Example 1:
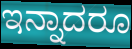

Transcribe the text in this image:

ಇನ್ನಾದರೂ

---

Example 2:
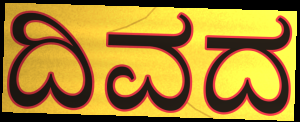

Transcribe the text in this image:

ದಿವದ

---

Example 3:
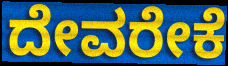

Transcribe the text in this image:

ದೇವರೇಕೆ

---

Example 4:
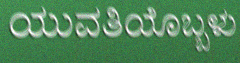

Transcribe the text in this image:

ಯುವತಿಯೊಬ್ಬಳು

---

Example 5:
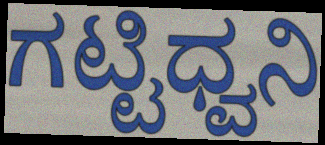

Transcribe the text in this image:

ಗಟ್ಟಿಧ್ವನಿ